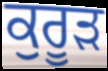
ਕੁਰੂੜ